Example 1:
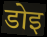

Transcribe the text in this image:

डोइ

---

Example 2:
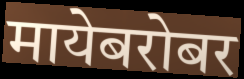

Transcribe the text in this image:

मायेबरोबर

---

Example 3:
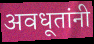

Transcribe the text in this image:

अवधूतांनी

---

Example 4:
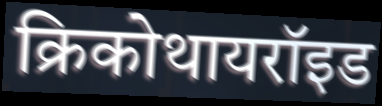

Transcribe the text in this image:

क्रिकोथायरॉइड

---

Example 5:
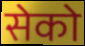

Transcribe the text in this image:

सेको